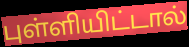
புள்ளியிட்டால்